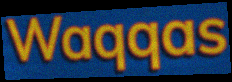
Waqqas